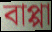
বাপ্পা